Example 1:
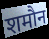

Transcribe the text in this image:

शमौन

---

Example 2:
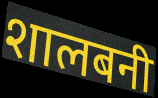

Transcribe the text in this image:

शालबनी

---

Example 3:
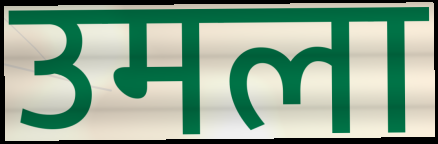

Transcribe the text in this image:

उमला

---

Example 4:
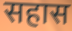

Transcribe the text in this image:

सहास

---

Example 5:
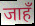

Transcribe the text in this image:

जाहँ